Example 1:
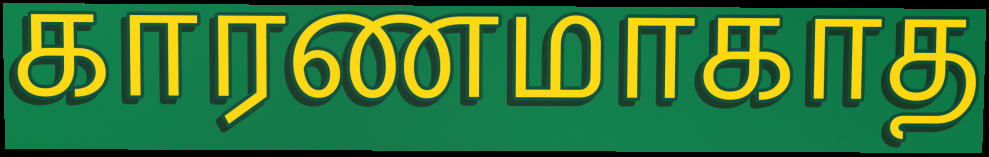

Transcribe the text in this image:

காரணமாகாத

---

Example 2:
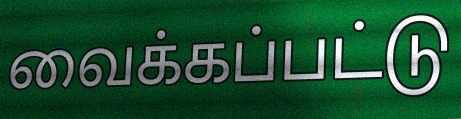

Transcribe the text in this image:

வைக்கப்பட்டு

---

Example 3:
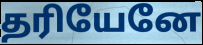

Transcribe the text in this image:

தரியேனே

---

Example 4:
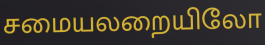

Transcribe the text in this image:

சமையலறையிலோ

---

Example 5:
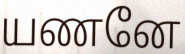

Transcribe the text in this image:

யணனே